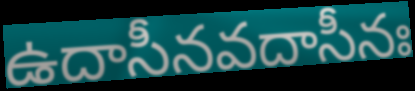
ఉదాసీనవదాసీనః